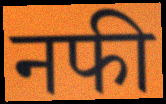
नफी